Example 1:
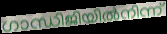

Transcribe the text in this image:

ഗാന്ധിജിയിൽനിന്ന്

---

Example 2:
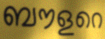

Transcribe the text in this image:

ബൗളറെ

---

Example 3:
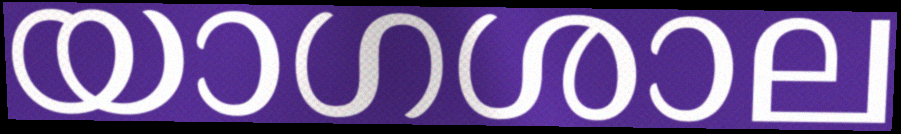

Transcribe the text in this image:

യാഗശാല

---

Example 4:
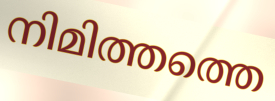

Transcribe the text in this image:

നിമിത്തത്തെ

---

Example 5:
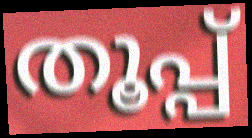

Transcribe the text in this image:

തൂപ്പ്